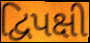
દ્વિપક્ષી